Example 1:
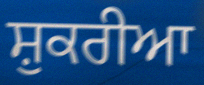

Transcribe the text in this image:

ਸ਼ੁਕਰੀਆ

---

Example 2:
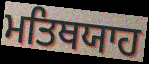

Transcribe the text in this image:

ਮਤਿਥਯਾਹ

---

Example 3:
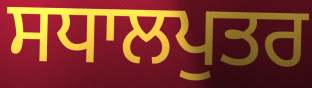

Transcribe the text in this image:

ਸਧਾਲਪੁਤਰ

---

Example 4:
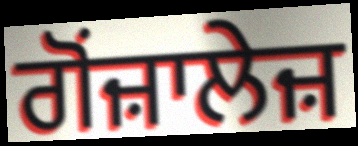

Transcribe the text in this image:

ਗੋਂਜ਼ਾਲੇਜ਼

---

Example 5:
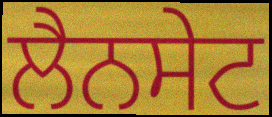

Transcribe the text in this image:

ਲੈਨਸੇਟ